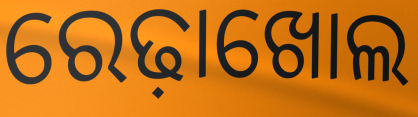
ରେଢ଼ାଖୋଲ